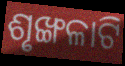
ଶୃଙ୍ଖଳାଟି